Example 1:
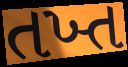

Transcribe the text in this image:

તખ્ત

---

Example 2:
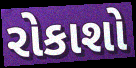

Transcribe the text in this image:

રોકાશો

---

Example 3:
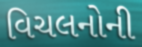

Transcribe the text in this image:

વિચલનોની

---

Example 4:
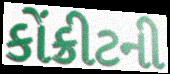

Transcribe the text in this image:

કોંક્રીટની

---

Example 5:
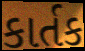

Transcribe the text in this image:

કાર્તક